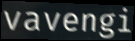
vavengi